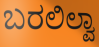
ಬರಲಿಲ್ವಾ